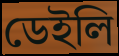
ডেইলি